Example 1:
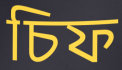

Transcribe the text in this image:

চিফ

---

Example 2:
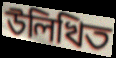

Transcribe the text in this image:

উলিখিত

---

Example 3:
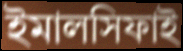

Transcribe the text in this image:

ইমালসিফাই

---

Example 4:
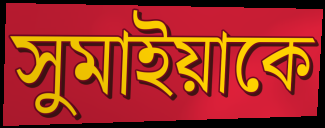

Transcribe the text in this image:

সুমাইয়াকে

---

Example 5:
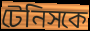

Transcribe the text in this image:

টেনিসকে